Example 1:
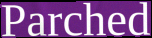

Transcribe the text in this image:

Parched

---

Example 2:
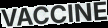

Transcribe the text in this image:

VACCINE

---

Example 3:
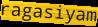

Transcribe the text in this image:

ragasiyam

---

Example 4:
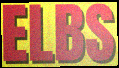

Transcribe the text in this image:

ELBS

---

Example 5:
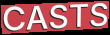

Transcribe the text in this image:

CASTS